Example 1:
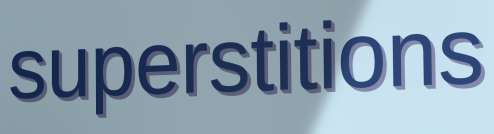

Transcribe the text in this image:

superstitions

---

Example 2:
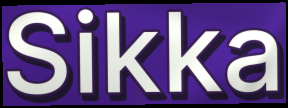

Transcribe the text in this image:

Sikka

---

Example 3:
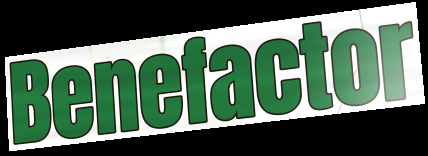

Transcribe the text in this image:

Benefactor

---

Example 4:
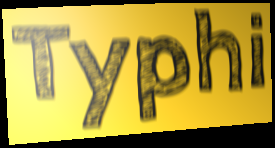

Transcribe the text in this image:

Typhi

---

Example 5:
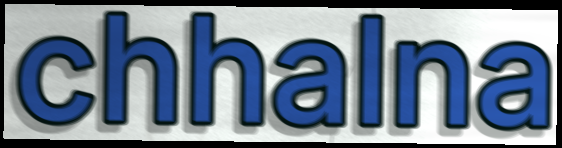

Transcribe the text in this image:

chhalna